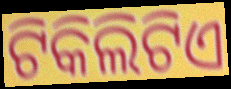
ଟିକିଲିଟିଏ